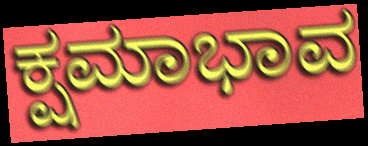
ಕ್ಷಮಾಭಾವ